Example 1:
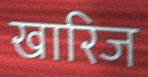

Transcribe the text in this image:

खारिज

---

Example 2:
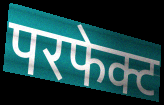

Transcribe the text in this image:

परफेक्ट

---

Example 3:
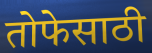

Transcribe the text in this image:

तोफेसाठी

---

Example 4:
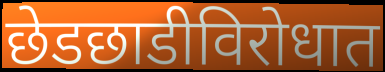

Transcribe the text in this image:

छेडछाडीविरोधात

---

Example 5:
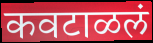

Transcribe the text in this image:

कवटाळलं